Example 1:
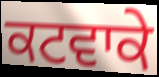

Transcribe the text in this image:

ਕਟਵਾਕੇ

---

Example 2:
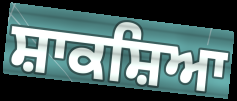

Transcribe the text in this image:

ਸ਼ਾਕਸ਼ਿਆ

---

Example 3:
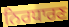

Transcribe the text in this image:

ਨਿਰਧਾਰਣ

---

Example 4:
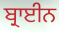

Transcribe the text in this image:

ਬ੍ਰਾਈਨ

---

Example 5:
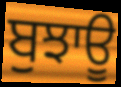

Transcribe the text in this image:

ਬੁਝਾਊ